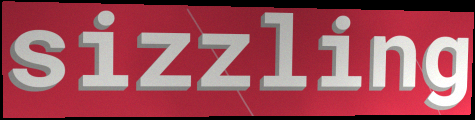
sizzling